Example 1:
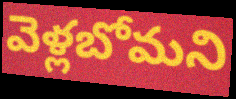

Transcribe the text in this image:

వెళ్లబోమని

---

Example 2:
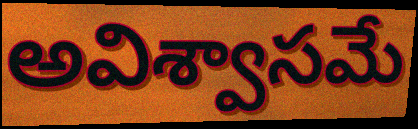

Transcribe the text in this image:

అవిశ్వాసమే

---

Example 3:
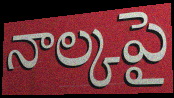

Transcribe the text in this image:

నాల్కపై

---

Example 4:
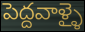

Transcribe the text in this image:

పెద్దవాళ్ళై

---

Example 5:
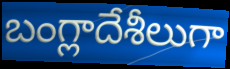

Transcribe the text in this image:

బంగ్లాదేశీలుగా